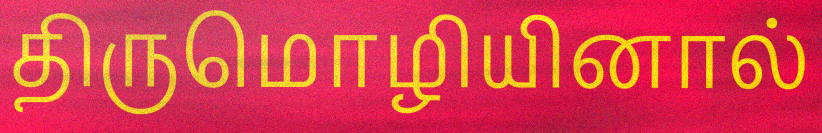
திருமொழியினால்